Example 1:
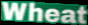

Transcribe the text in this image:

Wheat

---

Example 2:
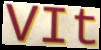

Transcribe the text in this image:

VIt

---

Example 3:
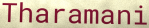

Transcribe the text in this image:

Tharamani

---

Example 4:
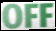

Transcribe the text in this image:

OFF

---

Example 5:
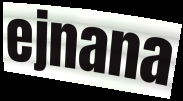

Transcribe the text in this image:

ejnana